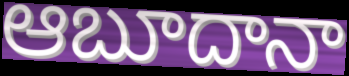
ఆబూదానా